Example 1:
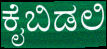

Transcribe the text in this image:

ಕೈಬಿಡಲಿ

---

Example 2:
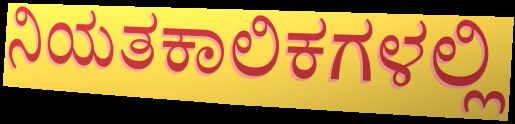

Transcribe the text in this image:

ನಿಯತಕಾಲಿಕಗಳಲ್ಲಿ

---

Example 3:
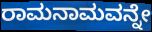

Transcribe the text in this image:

ರಾಮನಾಮವನ್ನೇ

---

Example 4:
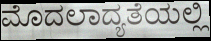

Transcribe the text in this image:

ಮೊದಲಾದ್ಯತೆಯಲ್ಲಿ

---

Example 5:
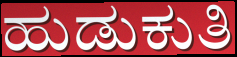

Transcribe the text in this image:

ಹುಡುಕುತಿ